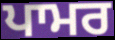
ਪਾਮਰ